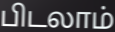
பிடலாம்